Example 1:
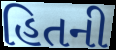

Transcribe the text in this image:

હિતની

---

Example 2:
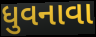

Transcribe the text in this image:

ધુવનાવા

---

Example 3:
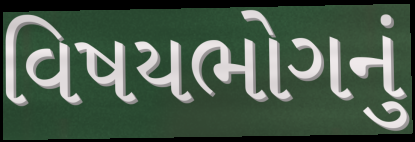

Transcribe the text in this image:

વિષયભોગનું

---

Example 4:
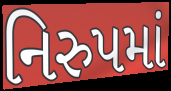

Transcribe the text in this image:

નિરુપમાં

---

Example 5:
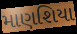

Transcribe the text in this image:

માણશિયા